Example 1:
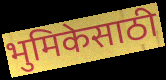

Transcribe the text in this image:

भुमिकेसाठी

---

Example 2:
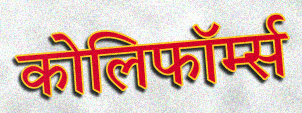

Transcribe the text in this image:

कोलिफॉर्म्स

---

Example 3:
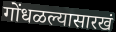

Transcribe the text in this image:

गोंधळल्यासारखं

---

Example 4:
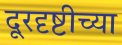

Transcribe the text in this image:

दूरदृष्टीच्या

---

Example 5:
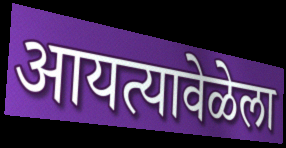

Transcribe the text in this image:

आयत्यावेळेला